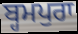
ਬ੍ਹਮਪੁਰਾ